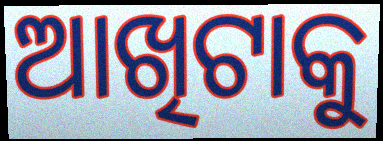
ଆଖିଟାକୁ